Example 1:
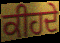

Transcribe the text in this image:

ਕੀਹਦੇ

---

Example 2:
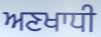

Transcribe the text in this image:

ਅਣਖਾਧੀ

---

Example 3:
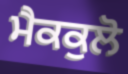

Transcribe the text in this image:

ਮੈਕਕੁਲੋ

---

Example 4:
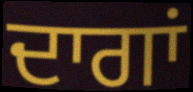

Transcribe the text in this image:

ਦਾਗਾਂ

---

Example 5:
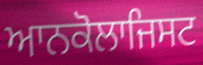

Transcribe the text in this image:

ਆਨਕੋਲਾਜਿਸਟ